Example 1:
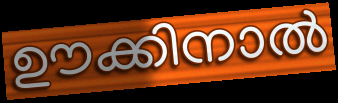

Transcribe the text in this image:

ഊക്കിനാൽ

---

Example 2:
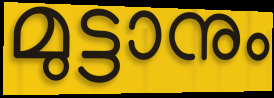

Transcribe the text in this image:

മുട്ടാനും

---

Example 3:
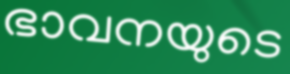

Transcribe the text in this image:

ഭാവനയുടെ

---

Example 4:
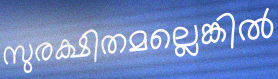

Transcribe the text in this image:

സുരക്ഷിതമല്ലെങ്കിൽ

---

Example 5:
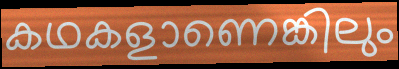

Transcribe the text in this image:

കഥകളാണെങ്കിലും